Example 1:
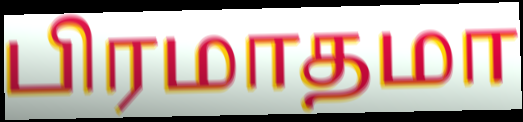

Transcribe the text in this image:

பிரமாதமா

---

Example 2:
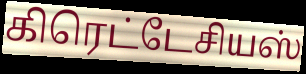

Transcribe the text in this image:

கிரெட்டேசியஸ்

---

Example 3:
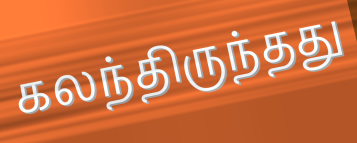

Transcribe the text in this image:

கலந்திருந்தது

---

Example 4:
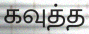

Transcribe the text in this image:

கவுத்த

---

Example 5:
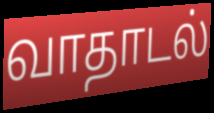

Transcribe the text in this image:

வாதாடல்